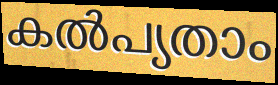
കൽപ്യതാം